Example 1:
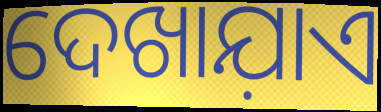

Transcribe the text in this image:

ଦେଖାଯ଼ାଏ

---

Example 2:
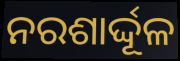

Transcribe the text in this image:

ନରଶାର୍ଦ୍ଦୂଳ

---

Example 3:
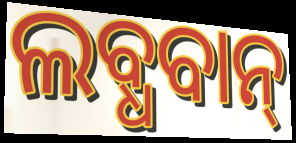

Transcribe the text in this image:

ଲବ୍ଧବାନ୍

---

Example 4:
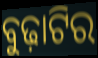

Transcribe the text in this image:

ବୁଢ଼ାଟିର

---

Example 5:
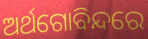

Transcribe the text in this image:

ଅର୍ଥଗୋବିନ୍ଦରେ